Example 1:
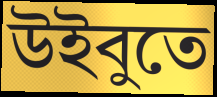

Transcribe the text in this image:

উইবুতে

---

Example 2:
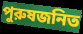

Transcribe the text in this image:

পুরুষজনিত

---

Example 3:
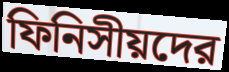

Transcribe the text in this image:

ফিনিসীয়দের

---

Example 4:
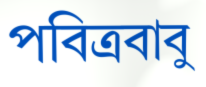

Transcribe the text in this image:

পবিত্রবাবু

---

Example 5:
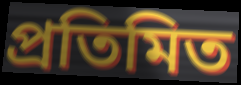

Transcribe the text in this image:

প্রতিমিত